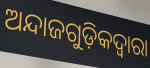
ଅନ୍ଦାଜଗୁଡ଼ିକଦ୍ୱାରା